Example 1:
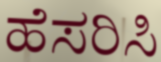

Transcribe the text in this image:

ಹೆಸರಿಸಿ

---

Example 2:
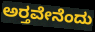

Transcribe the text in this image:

ಅರ‍್ತವೇನೆಂದು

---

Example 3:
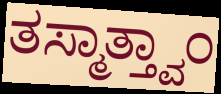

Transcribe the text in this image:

ತಸ್ಮಾತ್ತ್ವಾಂ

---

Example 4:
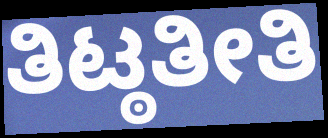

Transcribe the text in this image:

ತಿಟ್ಠತೀತಿ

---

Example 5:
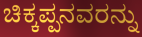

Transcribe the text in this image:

ಚಿಕ್ಕಪ್ಪನವರನ್ನು